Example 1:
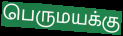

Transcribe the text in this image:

பெருமயக்கு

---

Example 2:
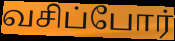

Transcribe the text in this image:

வசிப்போர்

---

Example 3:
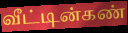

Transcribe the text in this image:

வீட்டின்கண்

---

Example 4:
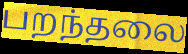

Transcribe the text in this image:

பறந்தலை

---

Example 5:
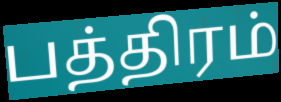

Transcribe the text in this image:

பத்திரம்